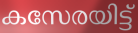
കസേരയിട്ട്